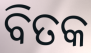
ବିତକ